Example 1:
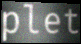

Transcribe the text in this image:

plet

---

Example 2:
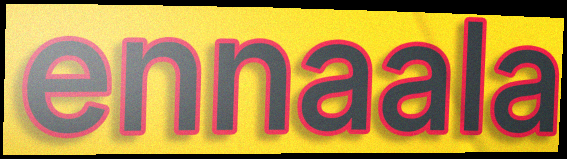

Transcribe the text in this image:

ennaala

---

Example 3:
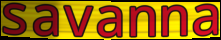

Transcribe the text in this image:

savanna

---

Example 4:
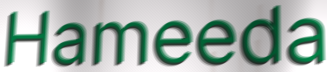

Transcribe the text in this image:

Hameeda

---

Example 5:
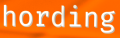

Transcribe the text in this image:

hording